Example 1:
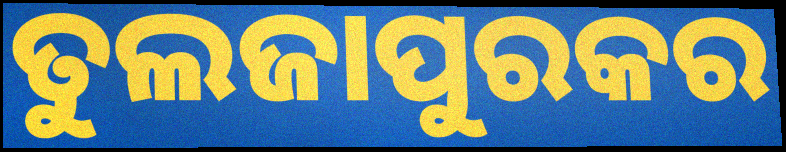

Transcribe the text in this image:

ତୁଲଜାପୁରକର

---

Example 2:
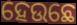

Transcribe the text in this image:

ହେଉଛେ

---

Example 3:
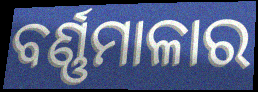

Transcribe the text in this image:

ବର୍ଣ୍ଣମାଳାର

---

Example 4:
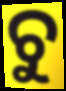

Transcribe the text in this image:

ଚୁ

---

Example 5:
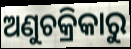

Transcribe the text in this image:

ଅଣୁଚକ୍ରିକାରୁ